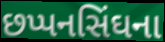
છપ્પનસિંઘના